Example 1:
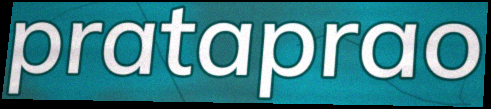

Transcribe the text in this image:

prataprao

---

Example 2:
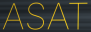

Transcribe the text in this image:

ASAT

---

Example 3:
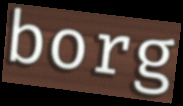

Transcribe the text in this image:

borg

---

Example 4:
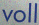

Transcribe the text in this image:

voll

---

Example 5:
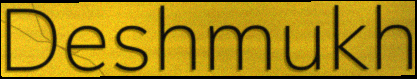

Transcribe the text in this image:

Deshmukh